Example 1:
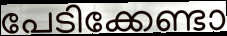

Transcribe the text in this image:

പേടിക്കേണ്ടാ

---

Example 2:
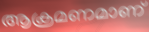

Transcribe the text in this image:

ആക്രമണമാണ്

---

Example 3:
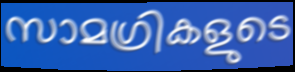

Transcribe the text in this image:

സാമഗ്രികളുടെ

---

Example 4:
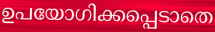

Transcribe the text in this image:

ഉപയോഗിക്കപ്പെടാതെ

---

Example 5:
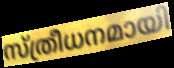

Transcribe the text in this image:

സ്ത്രീധനമായി